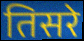
तिसरे